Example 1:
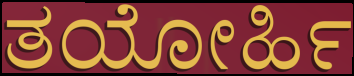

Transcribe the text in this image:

ತಯೋರ್ಹಿ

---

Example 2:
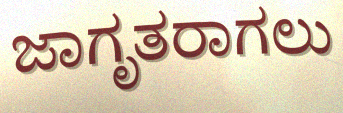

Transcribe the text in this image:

ಜಾಗೃತರಾಗಲು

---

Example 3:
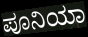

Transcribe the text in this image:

ಪೂನಿಯಾ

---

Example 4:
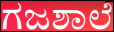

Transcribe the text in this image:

ಗಜಶಾಲೆ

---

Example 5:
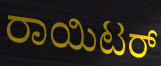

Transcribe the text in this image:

ರಾಯಿಟರ್